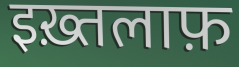
इख़्तलाफ़